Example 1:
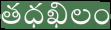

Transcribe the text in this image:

తధఖిలం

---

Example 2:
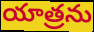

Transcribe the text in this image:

యాత్రను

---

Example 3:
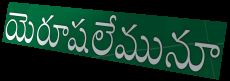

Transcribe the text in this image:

యెరూషలేమునూ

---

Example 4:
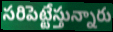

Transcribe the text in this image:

సరిపెట్టేస్తున్నారు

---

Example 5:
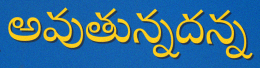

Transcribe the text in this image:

అవుతున్నదన్న